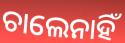
ଚାଲେନାହିଁ